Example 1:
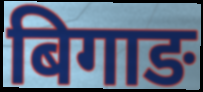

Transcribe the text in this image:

बिगाङ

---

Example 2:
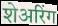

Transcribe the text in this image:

शेअरिंग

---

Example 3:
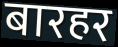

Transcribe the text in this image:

बारहर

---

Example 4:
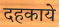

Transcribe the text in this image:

दहकाये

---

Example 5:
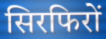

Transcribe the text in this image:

सिरफिरों